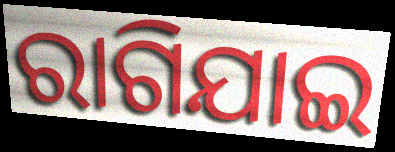
ରାଗିଯାଇ